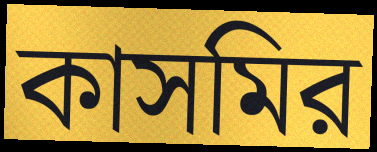
কাসমির